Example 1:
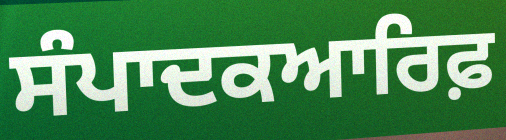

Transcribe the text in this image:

ਸੰਪਾਦਕਆਰਿਫ਼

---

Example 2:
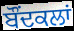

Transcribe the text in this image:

ਬੌਂਦਕਲਾਂ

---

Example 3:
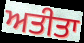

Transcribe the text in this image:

ਅਤੀਤਾ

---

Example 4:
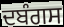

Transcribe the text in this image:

ਦਬੰਗਸ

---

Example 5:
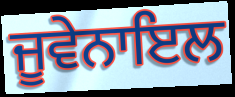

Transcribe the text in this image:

ਜੂਵੇਨਾਇਲ